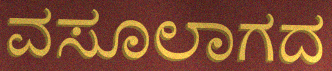
ವಸೂಲಾಗದ